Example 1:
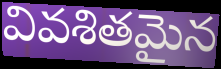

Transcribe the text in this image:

వివశితమైన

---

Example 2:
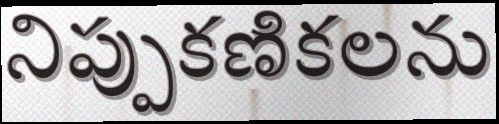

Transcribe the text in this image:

నిప్పుకణికలను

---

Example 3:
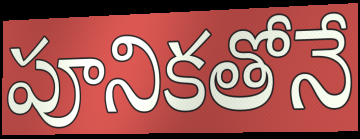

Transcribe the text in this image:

పూనికతోనే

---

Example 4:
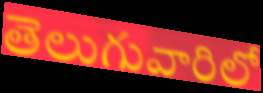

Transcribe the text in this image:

తెలుగువారిలో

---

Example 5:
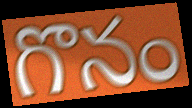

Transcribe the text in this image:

గొనం